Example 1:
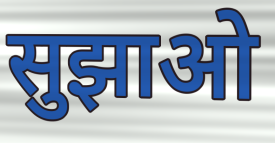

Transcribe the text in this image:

सुझाओ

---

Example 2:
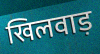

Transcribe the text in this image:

खिलवाड़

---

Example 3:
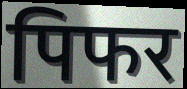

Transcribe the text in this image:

पिफर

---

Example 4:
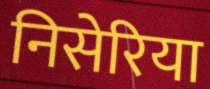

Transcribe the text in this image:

निसेरिया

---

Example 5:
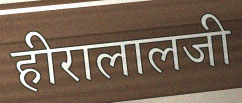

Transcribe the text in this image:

हीरालालजी